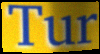
Tur